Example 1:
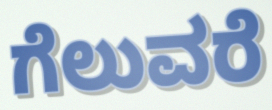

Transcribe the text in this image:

ಗೆಲುವರೆ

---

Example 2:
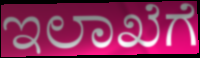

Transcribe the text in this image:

ಇಲಾಖೆಗೆ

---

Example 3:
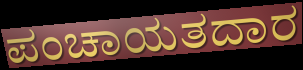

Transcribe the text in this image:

ಪಂಚಾಯತದಾರ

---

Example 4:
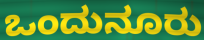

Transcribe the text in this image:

ಒಂದುನೂರು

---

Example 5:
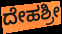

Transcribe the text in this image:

ದೇಹಶ್ರೀ